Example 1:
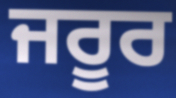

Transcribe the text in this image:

ਜਰੂਰ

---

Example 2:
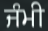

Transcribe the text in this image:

ਜੰਮੀ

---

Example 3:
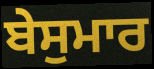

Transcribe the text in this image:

ਬੇਸੁਮਾਰ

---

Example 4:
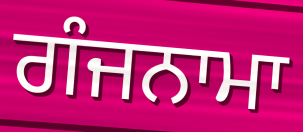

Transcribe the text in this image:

ਗੰਜਨਾਮਾ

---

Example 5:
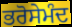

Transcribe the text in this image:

ਭਰੋਸੇਮੰਦ